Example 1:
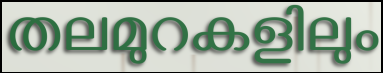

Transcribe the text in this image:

തലമുറകളിലും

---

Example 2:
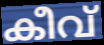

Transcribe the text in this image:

കീവ്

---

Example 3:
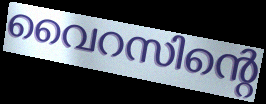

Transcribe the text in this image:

വൈറസിന്റെ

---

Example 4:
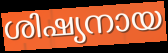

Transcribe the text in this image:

ശിഷ്യനായ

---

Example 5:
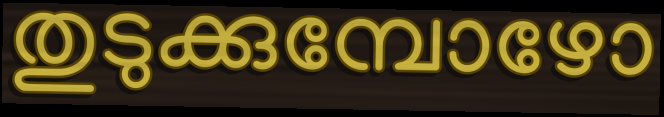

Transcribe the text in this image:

തുടുക്കുമ്പോഴോ